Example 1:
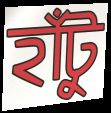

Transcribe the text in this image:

হাঁটু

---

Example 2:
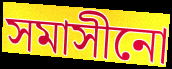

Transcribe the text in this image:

সমাসীনো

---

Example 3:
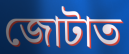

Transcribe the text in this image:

জোটাত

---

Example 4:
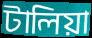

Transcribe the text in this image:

টালিয়া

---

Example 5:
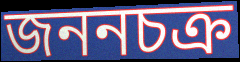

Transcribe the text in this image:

জননচক্র